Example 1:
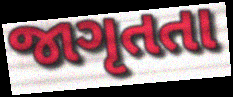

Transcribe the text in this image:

જાગૃતતા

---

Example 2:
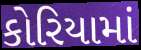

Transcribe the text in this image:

કોરિયામાં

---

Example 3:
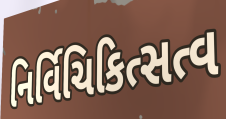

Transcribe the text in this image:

નિર્વિચિકિત્સત્વ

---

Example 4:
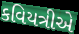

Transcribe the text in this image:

કવિયત્રીએ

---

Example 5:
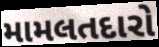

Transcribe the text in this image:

મામલતદારો